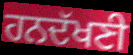
ਹਨਦੱਖਣੀ